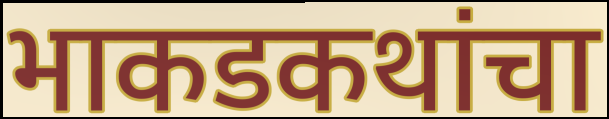
भाकडकथांचा